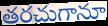
తరచుగానూ